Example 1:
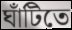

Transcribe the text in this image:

ঘাঁটিতে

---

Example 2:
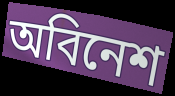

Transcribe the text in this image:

অবিনেশ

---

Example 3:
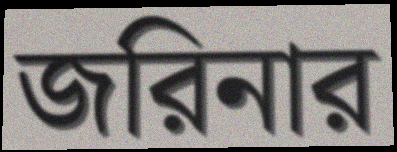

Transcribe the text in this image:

জরিনার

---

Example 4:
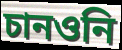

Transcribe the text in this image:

চানওনি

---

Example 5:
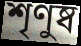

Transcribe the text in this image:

শৃণুষ্ব